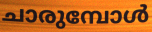
ചാരുമ്പോൾ